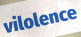
vilolence